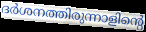
ദർശനത്തിരുന്നാളിന്റെ